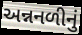
અન્નનળીનું